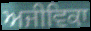
ਅਜੀਵਿਕਾ